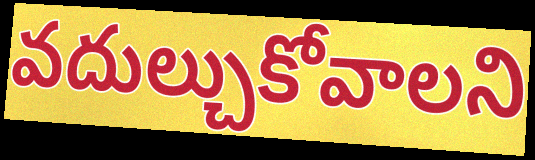
వదుల్చుకోవాలని